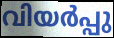
വിയർപ്പു